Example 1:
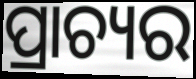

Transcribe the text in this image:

ପ୍ରାଚ୍ୟର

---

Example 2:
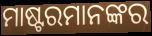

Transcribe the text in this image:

ମାଷ୍ଟରମାନଙ୍କର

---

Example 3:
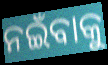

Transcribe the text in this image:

ନଇଁବାକୁ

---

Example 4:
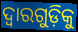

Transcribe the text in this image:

ଦ୍ୱାରଗୁଡ଼ିକୁ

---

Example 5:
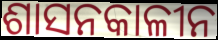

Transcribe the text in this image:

ଶାସନକାଳୀନ